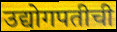
उद्योगपतीची